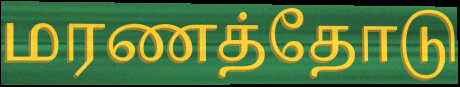
மரணத்தோடு